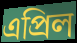
এপ্ৰিল